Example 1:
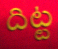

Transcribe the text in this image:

దిట్ట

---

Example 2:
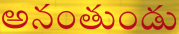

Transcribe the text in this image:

అనంతుండు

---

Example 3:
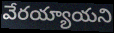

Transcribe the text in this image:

వేరయ్యాయని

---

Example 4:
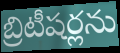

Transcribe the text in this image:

బ్రిటీషర్లను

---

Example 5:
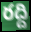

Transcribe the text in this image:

రద్ది